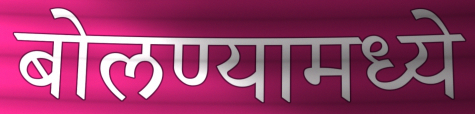
बोलण्यामध्ये